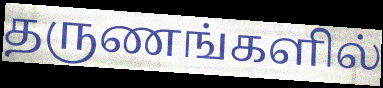
தருணங்களில்